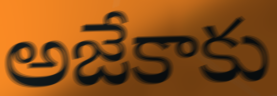
అజేకాకు